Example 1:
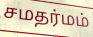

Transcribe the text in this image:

சமதர்மம்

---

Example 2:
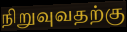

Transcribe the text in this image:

நிறுவுவதற்கு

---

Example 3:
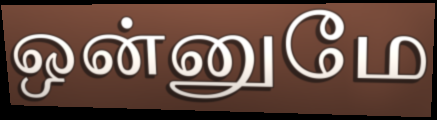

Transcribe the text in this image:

ஒன்னுமே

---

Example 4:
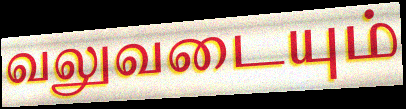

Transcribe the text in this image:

வலுவடையும்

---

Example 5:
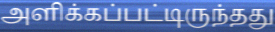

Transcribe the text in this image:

அளிக்கப்பட்டிருந்தது